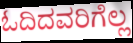
ಓದಿದವರಿಗೆಲ್ಲ